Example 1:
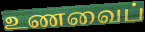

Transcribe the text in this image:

உணவைப்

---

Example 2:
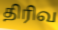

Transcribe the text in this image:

திரிவ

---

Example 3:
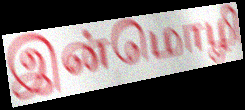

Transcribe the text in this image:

இன்மொழி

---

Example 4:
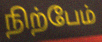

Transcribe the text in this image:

நிற்பேம்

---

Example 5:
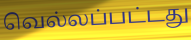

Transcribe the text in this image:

வெல்லப்பட்டது